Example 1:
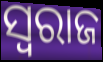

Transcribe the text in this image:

ସ୍ବରାଜ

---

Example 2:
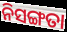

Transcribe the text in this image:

ନିସଙ୍ଗତା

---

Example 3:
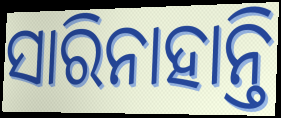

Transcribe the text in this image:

ସାରିନାହାନ୍ତି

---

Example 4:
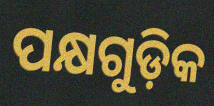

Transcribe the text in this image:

ପକ୍ଷଗୁଡ଼ିକ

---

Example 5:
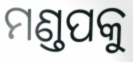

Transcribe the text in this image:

ମଣ୍ଡପକୁ